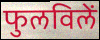
फुलविलें